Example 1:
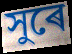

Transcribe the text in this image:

সুৰে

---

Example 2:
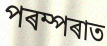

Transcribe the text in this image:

পৰম্পৰাত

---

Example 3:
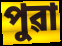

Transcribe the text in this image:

পুৱা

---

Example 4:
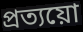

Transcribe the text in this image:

প্ৰত্যয়ো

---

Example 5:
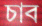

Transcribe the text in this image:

চাব